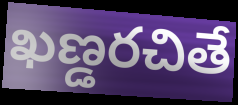
ఖణ్డరచితే